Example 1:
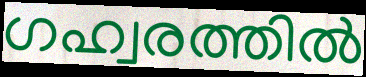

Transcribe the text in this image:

ഗഹ്വരത്തിൽ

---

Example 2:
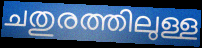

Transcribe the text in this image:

ചതുരത്തിലുള്ള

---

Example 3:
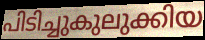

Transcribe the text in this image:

പിടിച്ചുകുലുക്കിയ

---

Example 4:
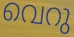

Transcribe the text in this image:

വെറു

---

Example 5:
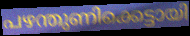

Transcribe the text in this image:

പഴന്തുണിക്കെട്ടായി